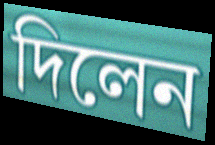
দিলেন